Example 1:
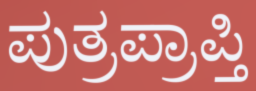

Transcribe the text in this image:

ಪುತ್ರಪ್ರಾಪ್ತಿ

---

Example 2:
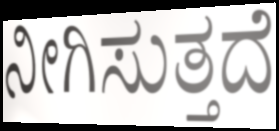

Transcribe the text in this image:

ನೀಗಿಸುತ್ತದೆ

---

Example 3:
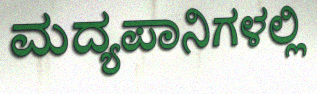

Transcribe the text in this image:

ಮದ್ಯಪಾನಿಗಳಲ್ಲಿ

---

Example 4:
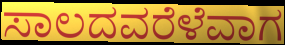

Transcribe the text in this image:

ಸಾಲದವರೆಳೆವಾಗ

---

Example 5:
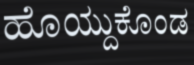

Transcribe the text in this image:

ಹೊಯ್ದುಕೊಂಡ